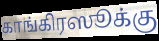
காங்கிரஸூக்கு